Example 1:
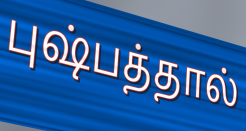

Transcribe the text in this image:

புஷ்பத்தால்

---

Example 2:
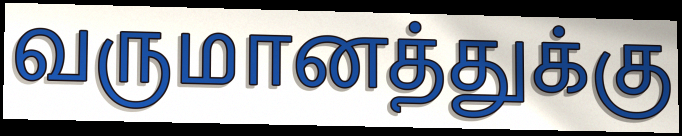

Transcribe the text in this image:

வருமானத்துக்கு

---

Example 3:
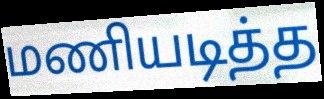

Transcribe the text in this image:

மணியடித்த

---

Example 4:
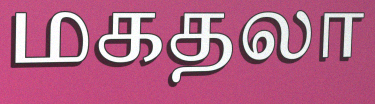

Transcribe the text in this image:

மகதலா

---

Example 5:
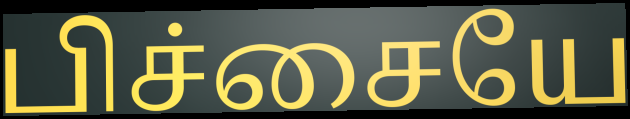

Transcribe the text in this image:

பிச்சையே